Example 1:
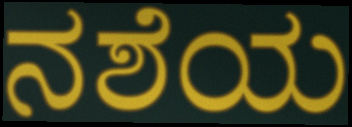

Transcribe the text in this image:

ನಶೆಯ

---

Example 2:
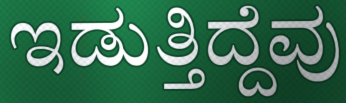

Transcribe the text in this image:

ಇಡುತ್ತಿದ್ದೆವು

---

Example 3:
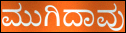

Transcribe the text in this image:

ಮುಗಿದಾವು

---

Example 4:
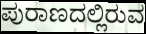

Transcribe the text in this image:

ಪುರಾಣದಲ್ಲಿರುವ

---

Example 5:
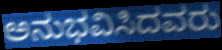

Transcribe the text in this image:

ಅನುಭವಿಸಿದವರು